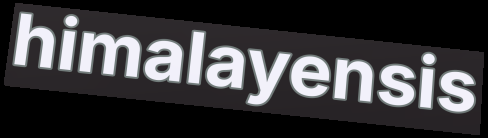
himalayensis